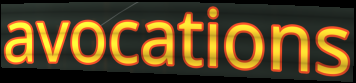
avocations